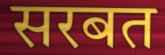
सरबत